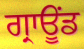
ਗ੍ਰਾਊਂਡ